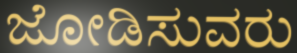
ಜೋಡಿಸುವರು